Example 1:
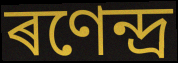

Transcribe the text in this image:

ৰণেন্দ্ৰ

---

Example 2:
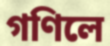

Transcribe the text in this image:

গণিলে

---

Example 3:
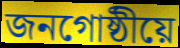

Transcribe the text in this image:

জনগোষ্ঠীয়ে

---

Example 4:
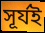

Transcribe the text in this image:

সূৰ্যই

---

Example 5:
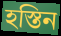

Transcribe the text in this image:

হস্তিন